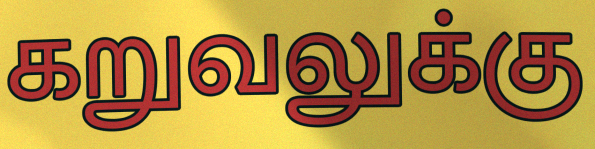
கறுவலுக்கு